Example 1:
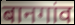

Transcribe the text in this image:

बानगांव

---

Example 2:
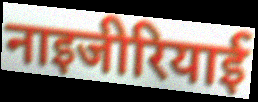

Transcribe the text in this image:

नाइजीरियाई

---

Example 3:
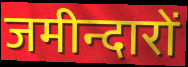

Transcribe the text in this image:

जमीन्दारों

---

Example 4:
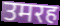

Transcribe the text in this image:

उमरह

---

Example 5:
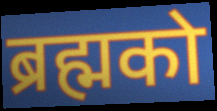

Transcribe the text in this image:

ब्रह्मको